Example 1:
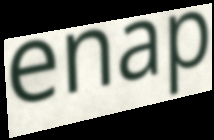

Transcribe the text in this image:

enap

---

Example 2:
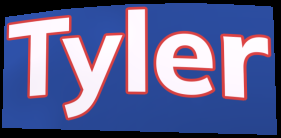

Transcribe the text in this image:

Tyler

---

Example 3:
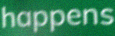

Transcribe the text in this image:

happens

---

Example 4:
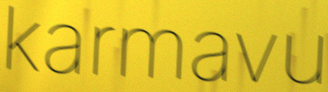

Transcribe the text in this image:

karmavu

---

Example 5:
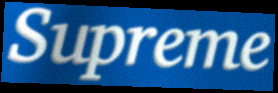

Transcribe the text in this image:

Supreme